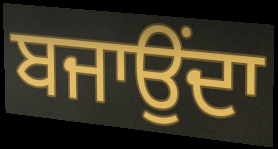
ਬਜਾਉਂਦਾ